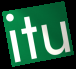
itu